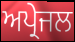
ਅਪ੍ਰੇਜਲ